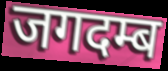
जगदम्ब